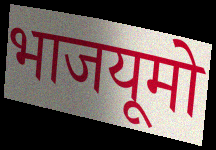
भाजयूमो